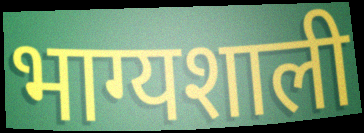
भाग्यशाली